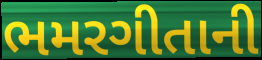
ભમરગીતાની